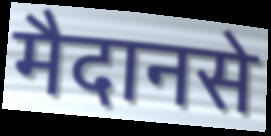
मैदानसे